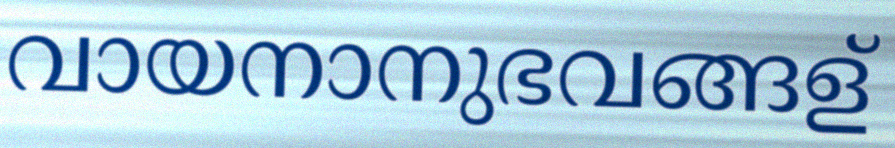
വായനാനുഭവങ്ങള്